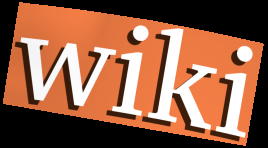
wiki